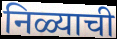
निळ्याची